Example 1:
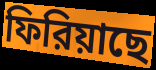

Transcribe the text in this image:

ফিরিয়াছে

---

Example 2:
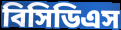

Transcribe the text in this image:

বিসিডিএস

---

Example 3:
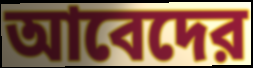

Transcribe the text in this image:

আবেদের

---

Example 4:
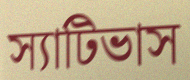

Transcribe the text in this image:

স্যাটিভাস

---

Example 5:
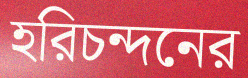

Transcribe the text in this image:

হরিচন্দনের